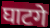
घाटगे